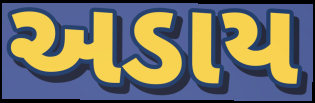
અડાય